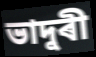
ভাদুৰী